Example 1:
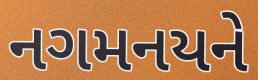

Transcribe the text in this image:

નગમનયને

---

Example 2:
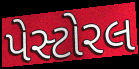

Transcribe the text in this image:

પેસ્ટોરલ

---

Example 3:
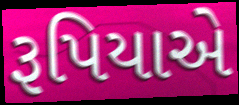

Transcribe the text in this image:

રૂપિયાએ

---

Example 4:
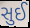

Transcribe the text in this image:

સુઈ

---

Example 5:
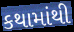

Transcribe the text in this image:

કથામાંથી